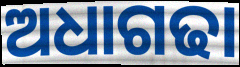
ଅଧାଗଢା